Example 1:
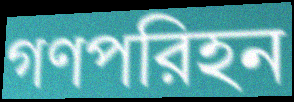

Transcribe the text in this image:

গণপরিহন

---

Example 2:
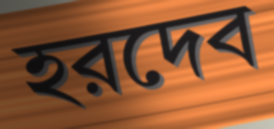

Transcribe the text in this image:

হরদেব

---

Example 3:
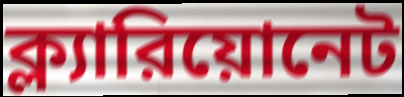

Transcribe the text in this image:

ক্ল্যারিয়োনেট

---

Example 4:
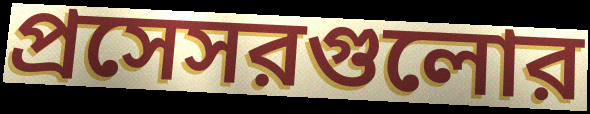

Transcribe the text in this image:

প্রসেসরগুলোর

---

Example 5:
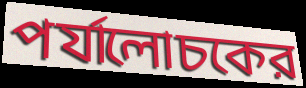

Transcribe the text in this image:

পর্যালোচকের